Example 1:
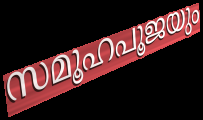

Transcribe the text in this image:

സമൂഹപൂജയും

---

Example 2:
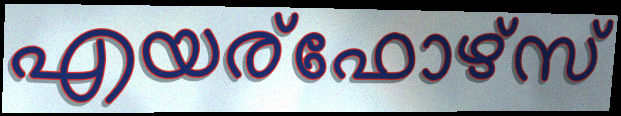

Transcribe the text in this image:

എയര്ഫോഴ്സ്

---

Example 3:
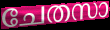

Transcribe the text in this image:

ചേതസാ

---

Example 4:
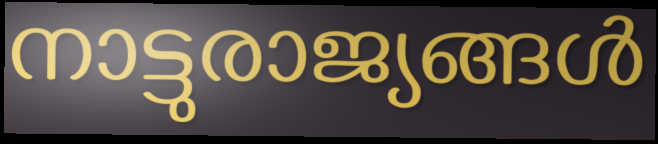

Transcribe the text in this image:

നാട്ടുരാജ്യങ്ങൾ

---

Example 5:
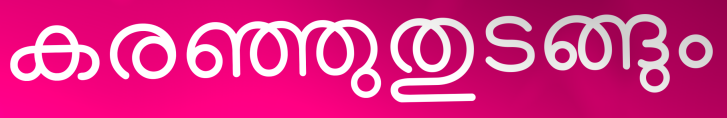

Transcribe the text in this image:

കരഞ്ഞുതുടങ്ങും